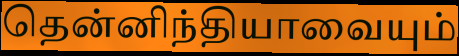
தென்னிந்தியாவையும்